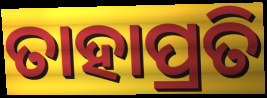
ତାହାପ୍ରତି